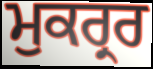
ਮੁਕਰ੍ਰਰ